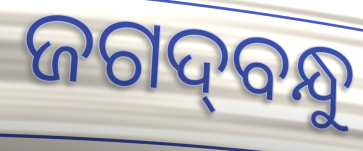
ଜଗଦ୍‌ବନ୍ଧୁ